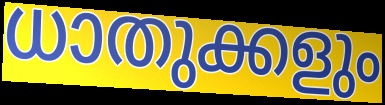
ധാതുക്കളും